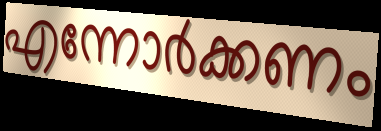
എന്നോർക്കണം